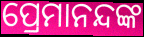
ପ୍ରେମାନନ୍ଦଙ୍କ